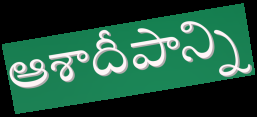
ఆశాదీపాన్ని